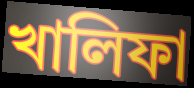
খালিফা